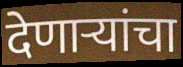
देणाऱ्यांचा